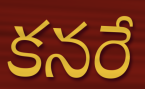
కనరే